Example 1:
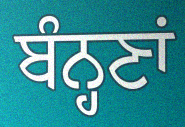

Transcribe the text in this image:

ਬੰਨ੍ਹਣਾਂ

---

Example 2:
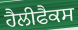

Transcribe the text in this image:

ਹੈਲੀਫੈਕਸ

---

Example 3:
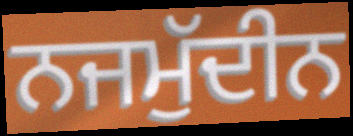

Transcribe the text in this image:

ਨਜਮੁੱਦੀਨ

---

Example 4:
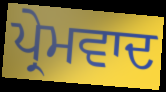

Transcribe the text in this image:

ਪ੍ਰੇਮਵਾਦ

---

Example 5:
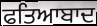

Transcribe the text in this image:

ਫਤਿਆਬਾਦ